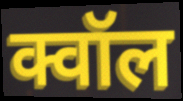
क्वॉल